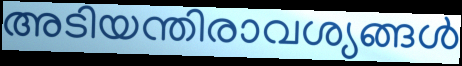
അടിയന്തിരാവശ്യങ്ങൾ